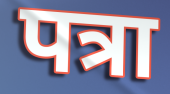
पत्रा